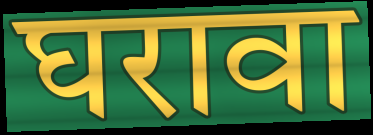
घरावा